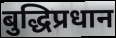
बुद्धिप्रधान